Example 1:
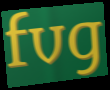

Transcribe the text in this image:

fug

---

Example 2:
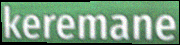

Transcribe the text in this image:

keremane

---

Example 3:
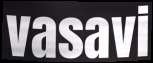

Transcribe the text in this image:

vasavi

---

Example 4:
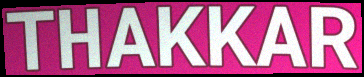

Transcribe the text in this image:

THAKKAR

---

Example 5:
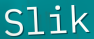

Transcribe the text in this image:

Slik